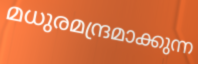
മധുരമന്ദ്രമാക്കുന്ന